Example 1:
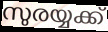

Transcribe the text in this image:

സുരയ്യക്ക്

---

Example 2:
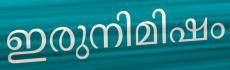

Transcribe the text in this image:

ഇരുനിമിഷം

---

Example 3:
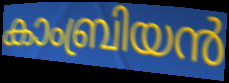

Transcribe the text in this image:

കാംബ്രിയൻ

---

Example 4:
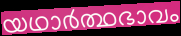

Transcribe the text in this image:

യഥാർത്ഥഭാവം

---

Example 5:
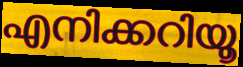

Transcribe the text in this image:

എനിക്കറിയൂ